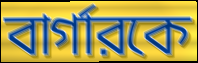
বার্গারকে